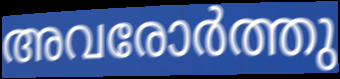
അവരോർത്തു